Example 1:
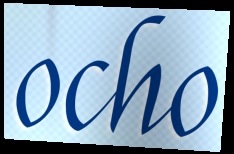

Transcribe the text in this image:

ocho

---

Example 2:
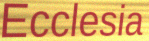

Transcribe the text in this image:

Ecclesia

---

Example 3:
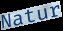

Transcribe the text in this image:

Natur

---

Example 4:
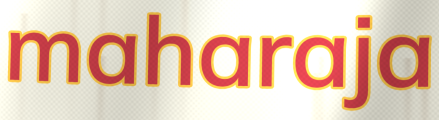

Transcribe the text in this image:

maharaja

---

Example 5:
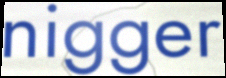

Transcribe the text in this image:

nigger